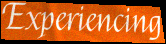
Experiencing